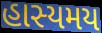
હાસ્યમય